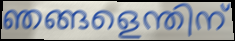
ഞങ്ങളെന്തിന്